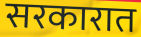
सरकारात